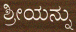
ಶ್ರೀಯನ್ನು